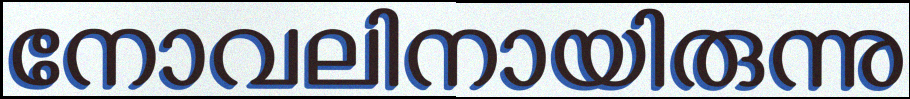
നോവലിനായിരുന്നു